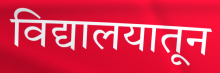
विद्यालयातून